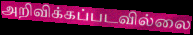
அறிவிக்கப்படவில்லை